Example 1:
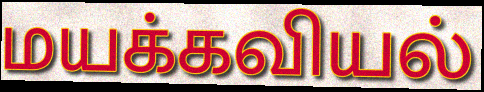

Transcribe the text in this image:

மயக்கவியல்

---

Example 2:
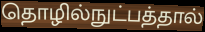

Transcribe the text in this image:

தொழில்நுட்பத்தால்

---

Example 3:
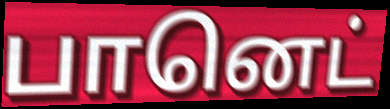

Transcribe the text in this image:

பானெட்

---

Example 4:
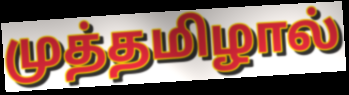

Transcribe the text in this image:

முத்தமிழால்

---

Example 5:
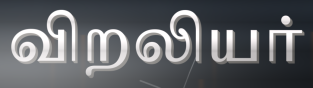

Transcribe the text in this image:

விறலியர்